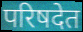
परिषदेत